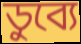
ডুব্যে